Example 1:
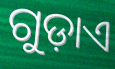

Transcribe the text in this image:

ଗୁଡ଼ାଏ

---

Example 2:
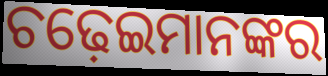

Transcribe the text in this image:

ଚଢ଼େଇମାନଙ୍କର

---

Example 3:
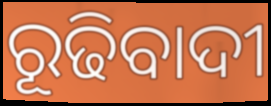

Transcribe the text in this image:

ରୂଢିବାଦୀ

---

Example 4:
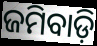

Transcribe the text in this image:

ଜମିବାଡ଼ି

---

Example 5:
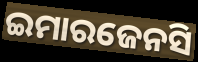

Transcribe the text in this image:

ଇମାରଜେନସି